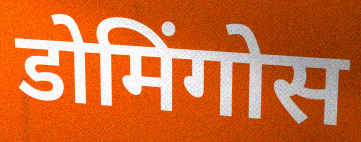
डोमिंगोस